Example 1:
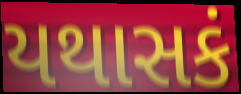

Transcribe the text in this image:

યથાસકં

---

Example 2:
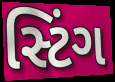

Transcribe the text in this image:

સ્ટિંગ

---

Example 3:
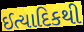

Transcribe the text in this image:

ઈત્યાદિકથી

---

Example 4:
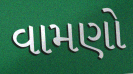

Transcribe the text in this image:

વામણો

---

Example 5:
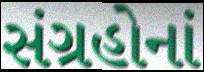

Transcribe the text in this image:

સંગ્રહોનાં